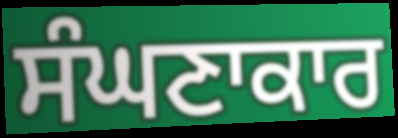
ਸੰਘਣਾਕਾਰ